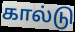
கால்டு